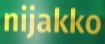
nijakko